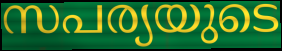
സപര്യയുടെ